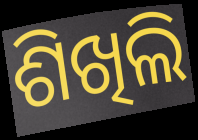
ଶିଖିଲି